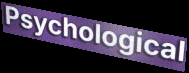
Psychological